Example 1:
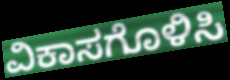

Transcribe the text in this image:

ವಿಕಾಸಗೊಳಿಸಿ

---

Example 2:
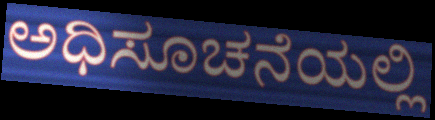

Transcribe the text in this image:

ಅಧಿಸೂಚನೆಯಲ್ಲಿ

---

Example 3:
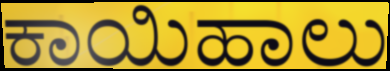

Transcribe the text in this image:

ಕಾಯಿಹಾಲು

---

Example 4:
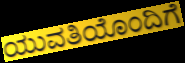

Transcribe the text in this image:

ಯುವತಿಯೊಂದಿಗೆ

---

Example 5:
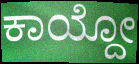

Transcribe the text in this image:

ಕಾಯ್ದೋ